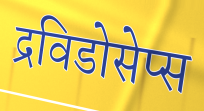
द्रविडोसेप्स